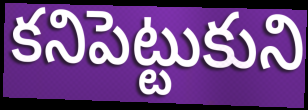
కనిపెట్టుకుని